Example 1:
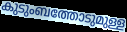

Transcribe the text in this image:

കുടുംബത്തോടുമുള്ള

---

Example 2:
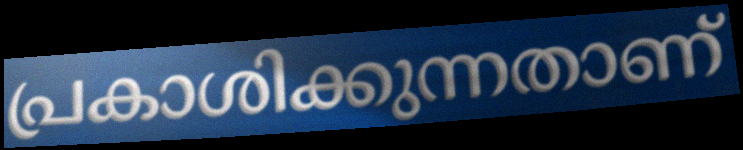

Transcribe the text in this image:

പ്രകാശിക്കുന്നതാണ്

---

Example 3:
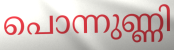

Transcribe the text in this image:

പൊന്നുണ്ണി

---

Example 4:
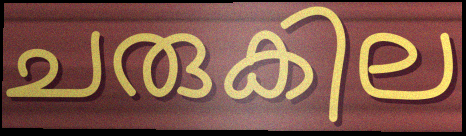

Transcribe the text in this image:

ചരുകില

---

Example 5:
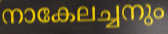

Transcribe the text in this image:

നാകേലച്ചനും